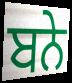
ਬਨੇ